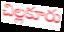
చిల్లకూరు